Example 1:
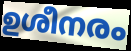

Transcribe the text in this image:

ഉശീനരം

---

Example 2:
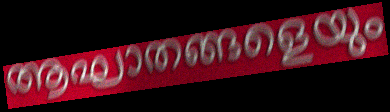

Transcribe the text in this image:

ആഘാതങ്ങളെയും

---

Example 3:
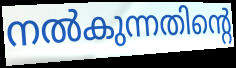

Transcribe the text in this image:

നൽകുന്നതിന്റെ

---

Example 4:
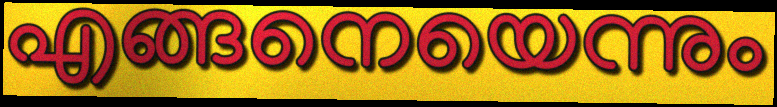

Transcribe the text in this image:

എങ്ങനെയെന്നും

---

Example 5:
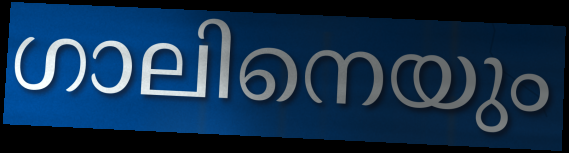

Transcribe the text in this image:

ഗാലിനെയും